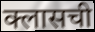
क्‍लासची